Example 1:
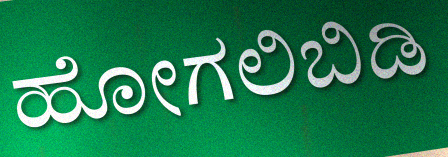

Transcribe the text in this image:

ಹೋಗಲಿಬಿಡಿ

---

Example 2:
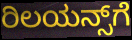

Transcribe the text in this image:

ರಿಲಯನ್ಸ್‌ಗೆ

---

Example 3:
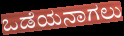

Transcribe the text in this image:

ಒಡೆಯನಾಗಲು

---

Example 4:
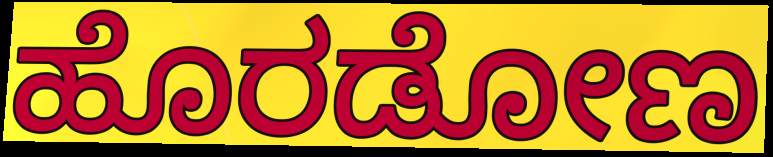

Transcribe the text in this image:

ಹೊರಡೋಣ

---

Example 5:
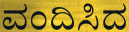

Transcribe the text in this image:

ವಂದಿಸಿದ